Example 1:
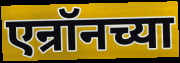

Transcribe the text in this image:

एन्रॉनच्या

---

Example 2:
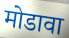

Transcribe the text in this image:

मोडावा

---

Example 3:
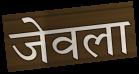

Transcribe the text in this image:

जेवला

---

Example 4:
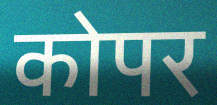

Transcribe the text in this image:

कोपर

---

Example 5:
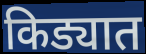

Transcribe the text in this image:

किड्यात